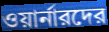
ওয়ার্নারদের